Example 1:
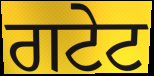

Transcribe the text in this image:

ਗਟੇਟ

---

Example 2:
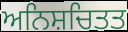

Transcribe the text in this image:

ਅਨਿਸ਼ਚਿਤਤ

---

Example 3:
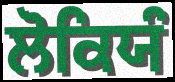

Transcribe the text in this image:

ਲੋਕਿਯੰ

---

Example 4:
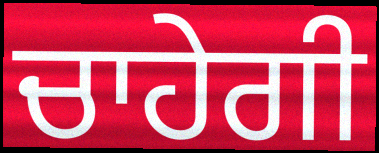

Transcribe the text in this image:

ਚਾਹੇਗੀ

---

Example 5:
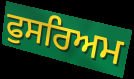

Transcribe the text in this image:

ਫੁਸਰਿਅਮ